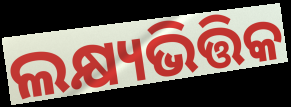
ଲକ୍ଷ୍ୟଭିତ୍ତିକ